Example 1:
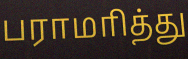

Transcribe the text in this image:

பராமரித்து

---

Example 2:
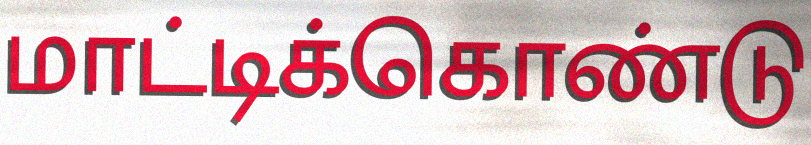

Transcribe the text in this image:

மாட்டிக்கொண்டு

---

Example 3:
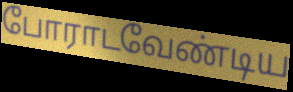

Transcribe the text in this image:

போராடவேண்டிய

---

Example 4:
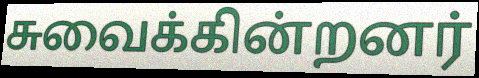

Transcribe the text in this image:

சுவைக்கின்றனர்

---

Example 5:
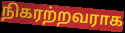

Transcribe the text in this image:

நிகரற்றவராக